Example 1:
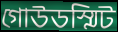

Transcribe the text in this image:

গোউডস্মিট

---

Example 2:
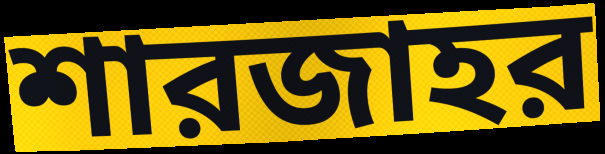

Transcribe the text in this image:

শারজাহর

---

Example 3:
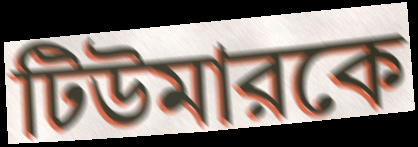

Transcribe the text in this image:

টিউমারকে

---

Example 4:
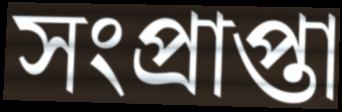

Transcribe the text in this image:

সংপ্রাপ্তা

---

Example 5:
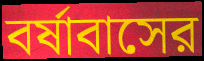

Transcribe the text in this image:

বর্ষাবাসের